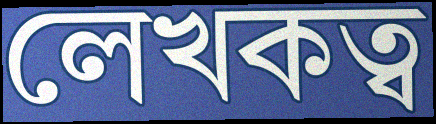
লেখকত্ব